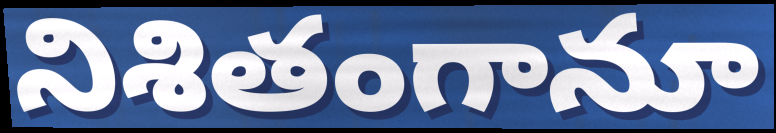
నిశితంగానూ